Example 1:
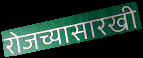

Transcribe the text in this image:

रोजच्यासारखी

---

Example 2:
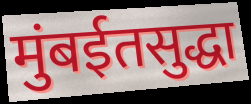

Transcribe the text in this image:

मुंबईतसुद्धा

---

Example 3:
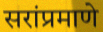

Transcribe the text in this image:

सरांप्रमाणे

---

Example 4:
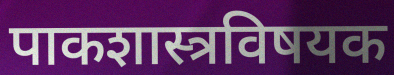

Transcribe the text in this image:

पाकशास्त्रविषयक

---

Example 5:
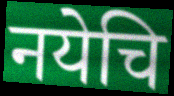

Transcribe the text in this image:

नयेचि